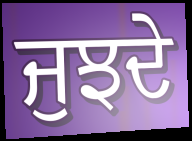
ਜੁਝਦੇ